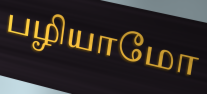
பழியாமோ